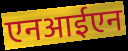
एनआईएन